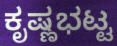
ಕೃಷ್ಣಭಟ್ಟ